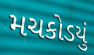
મચકોડયું